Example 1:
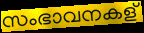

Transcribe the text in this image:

സംഭാവനകള്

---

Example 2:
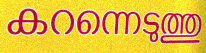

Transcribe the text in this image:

കറന്നെടുത്തു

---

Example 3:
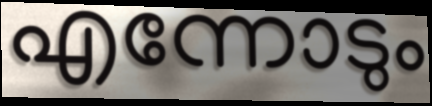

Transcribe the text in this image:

എന്നോടും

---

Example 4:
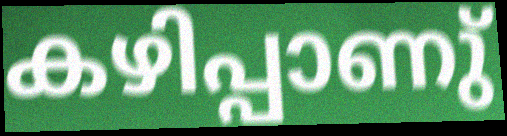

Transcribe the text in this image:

കഴിപ്പാണു്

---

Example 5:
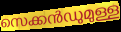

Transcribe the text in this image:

സെക്കൻഡുമുള്ള